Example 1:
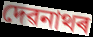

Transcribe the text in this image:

দেৱনাথৰ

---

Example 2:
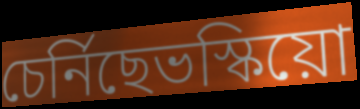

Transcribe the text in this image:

চেৰ্নিছেভস্কিয়ো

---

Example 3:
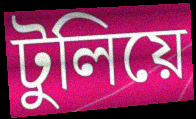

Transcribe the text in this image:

টুলিয়ে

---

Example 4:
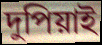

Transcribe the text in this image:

দুপিয়াই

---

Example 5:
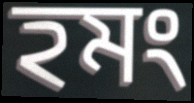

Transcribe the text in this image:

হমং